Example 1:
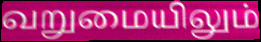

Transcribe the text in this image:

வறுமையிலும்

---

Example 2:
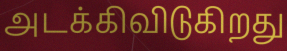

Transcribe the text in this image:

அடக்கிவிடுகிறது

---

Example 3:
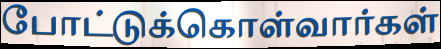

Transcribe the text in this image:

போட்டுக்கொள்வார்கள்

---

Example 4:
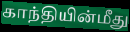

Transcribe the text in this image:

காந்தியின்மீது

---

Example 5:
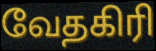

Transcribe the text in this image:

வேதகிரி